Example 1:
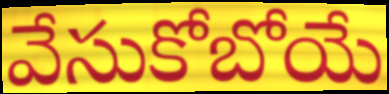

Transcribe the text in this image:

వేసుకోబోయే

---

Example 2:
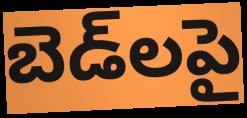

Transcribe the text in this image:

బెడ్‌లపై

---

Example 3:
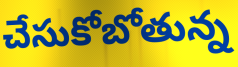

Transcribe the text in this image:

చేసుకోబోతున్న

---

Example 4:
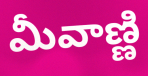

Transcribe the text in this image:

మీవాణ్ణి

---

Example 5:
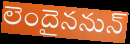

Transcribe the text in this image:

లెందైననున్